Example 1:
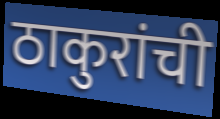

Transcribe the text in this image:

ठाकुरांची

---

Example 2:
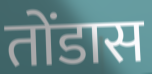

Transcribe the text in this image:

तोंडास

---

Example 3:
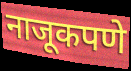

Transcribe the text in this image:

नाजूकपणे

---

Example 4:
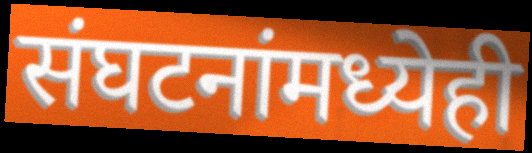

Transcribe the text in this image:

संघटनांमध्येही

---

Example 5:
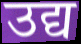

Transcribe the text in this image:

उद्य